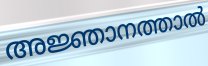
അജ്ഞാനത്താൽ